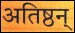
अतिष्ठन्